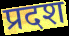
प्रदश